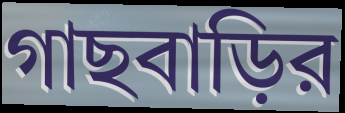
গাছবাড়ির